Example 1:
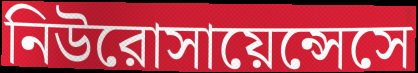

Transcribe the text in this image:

নিউরোসায়েন্সেসে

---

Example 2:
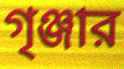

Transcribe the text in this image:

গৃঞ্জার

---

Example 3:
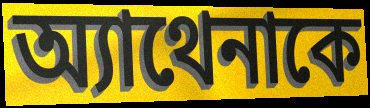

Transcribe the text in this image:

অ্যাথেনাকে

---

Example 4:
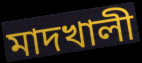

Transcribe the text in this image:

মাদখালী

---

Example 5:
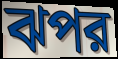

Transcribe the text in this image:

ঝপর